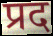
प्रद